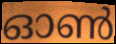
ഓൺ